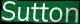
Sutton